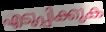
എടുപ്പിക്കുക